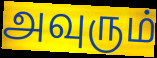
அவுரும்